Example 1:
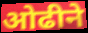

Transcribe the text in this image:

ओढीने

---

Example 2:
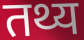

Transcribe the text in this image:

तथ्य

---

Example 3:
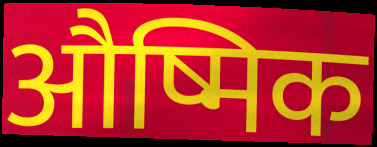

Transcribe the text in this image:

औष्मिक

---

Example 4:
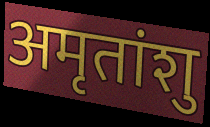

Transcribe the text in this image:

अमृतांशु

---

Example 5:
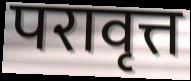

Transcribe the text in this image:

परावृत्त